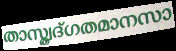
താസ്ത്വദ്ഗതമാനസാ